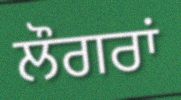
ਲੌਗਰਾਂ